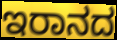
ಇರಾನದ